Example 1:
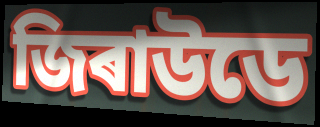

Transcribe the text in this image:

জিৰাউডে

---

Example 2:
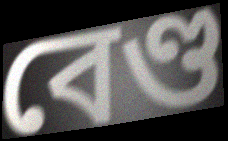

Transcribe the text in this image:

বেণ্ড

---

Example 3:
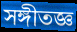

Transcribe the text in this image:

সঙ্গীতজ্ঞ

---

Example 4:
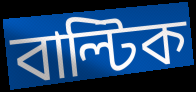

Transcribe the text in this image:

বাল্টিক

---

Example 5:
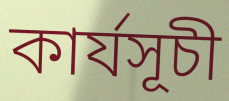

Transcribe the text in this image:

কাৰ্যসূচী